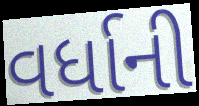
વર્ધાની